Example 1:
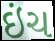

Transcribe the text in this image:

ઇંચ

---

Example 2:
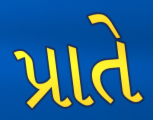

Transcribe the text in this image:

પ્રાતે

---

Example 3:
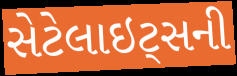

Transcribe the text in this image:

સેટેલાઇટ્સની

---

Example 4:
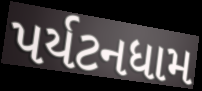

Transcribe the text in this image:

પર્યટનધામ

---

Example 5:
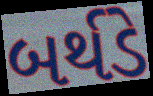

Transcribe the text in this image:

બર્થડે